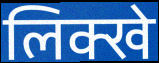
लिक्खे